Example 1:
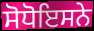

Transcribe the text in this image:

ਸੋਧੋਇਸਨੇ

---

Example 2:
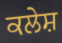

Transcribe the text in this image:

ਕਲੇਸ਼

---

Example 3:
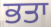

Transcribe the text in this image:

ਭਤਾ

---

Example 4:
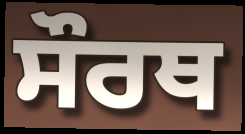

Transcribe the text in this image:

ਸੌਰਥ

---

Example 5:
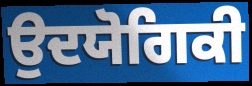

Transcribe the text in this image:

ਉਦਯੋਗਿਕੀ